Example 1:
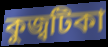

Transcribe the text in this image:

কুজ্বটিকা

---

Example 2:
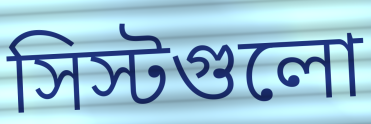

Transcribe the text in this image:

সিস্টগুলো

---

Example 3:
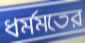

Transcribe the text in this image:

ধর্মমতের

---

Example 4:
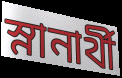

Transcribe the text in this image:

স্নানার্থী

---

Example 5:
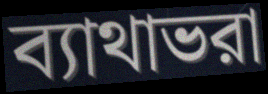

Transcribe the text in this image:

ব্যাথাভরা